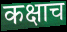
कक्षाच